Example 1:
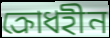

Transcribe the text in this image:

ক্রোধহীন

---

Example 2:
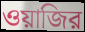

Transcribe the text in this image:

ওয়াজির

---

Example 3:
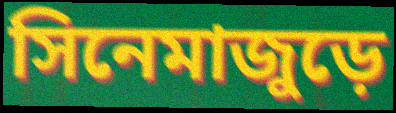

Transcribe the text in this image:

সিনেমাজুড়ে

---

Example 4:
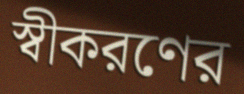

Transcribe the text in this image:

স্বীকরণের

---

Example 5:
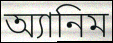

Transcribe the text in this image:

অ্যানিম